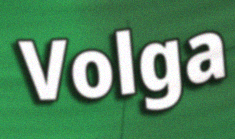
Volga